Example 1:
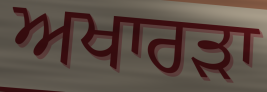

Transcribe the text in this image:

ਅਖਾਰੜਾ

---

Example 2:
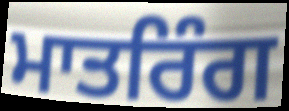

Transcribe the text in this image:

ਮਾਤਰਿੰਗ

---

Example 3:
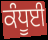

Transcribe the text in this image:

ਕੰਧੂਈ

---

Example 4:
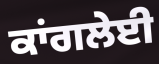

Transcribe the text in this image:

ਕਾਂਗਲੇਈ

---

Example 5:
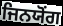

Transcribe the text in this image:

ਜਿਨਯੋਂਗ